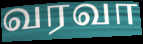
வரவா